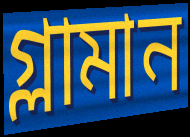
গ্লামান